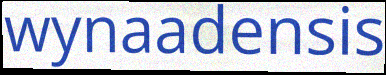
wynaadensis